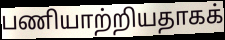
பணியாற்றியதாகக்